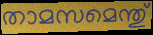
താമസമെന്തു്